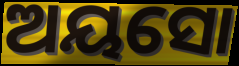
ଅୟସୋ